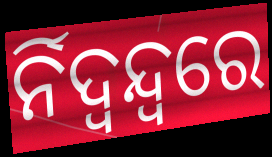
ର୍ନିଦ୍ୱନ୍ଦ୍ୱରେ